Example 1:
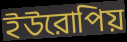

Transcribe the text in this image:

ইউরোপিয়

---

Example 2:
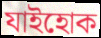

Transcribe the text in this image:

যাইহোক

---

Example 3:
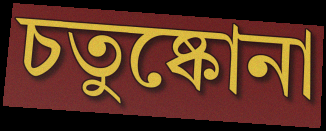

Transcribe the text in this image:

চতুষ্কোনা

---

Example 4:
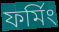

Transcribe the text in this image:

ফর্মিং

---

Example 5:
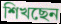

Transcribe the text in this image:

শিখছেন